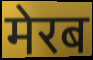
मेरब